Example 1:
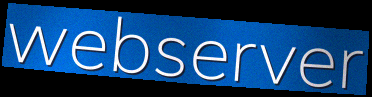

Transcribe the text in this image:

webserver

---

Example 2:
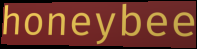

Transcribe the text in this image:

honeybee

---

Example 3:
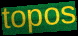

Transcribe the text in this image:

topos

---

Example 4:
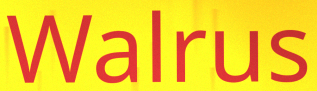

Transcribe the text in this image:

Walrus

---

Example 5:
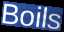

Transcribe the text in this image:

Boils